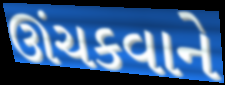
ઊંચકવાને